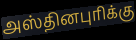
அஸ்தினபுரிக்கு